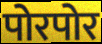
पोरपोर